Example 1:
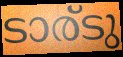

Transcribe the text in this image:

ടാര്ടു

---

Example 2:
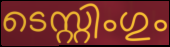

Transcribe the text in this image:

ടെസ്റ്റിംഗും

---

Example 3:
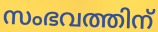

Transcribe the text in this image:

സംഭവത്തിന്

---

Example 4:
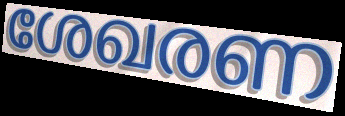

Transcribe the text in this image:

ശേഖരണ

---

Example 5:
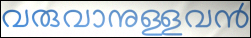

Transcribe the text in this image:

വരുവാനുള്ളവൻ